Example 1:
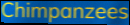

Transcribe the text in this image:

Chimpanzees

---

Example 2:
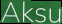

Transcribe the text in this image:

Aksu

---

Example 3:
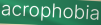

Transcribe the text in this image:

acrophobia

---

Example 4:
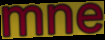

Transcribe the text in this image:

mne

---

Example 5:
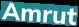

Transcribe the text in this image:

Amrut